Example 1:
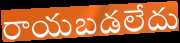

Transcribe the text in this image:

రాయబడలేదు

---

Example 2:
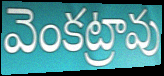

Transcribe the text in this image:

వెంకట్రావు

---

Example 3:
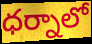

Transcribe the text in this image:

ధర్నాలో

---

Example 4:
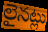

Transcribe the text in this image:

లైనట్లు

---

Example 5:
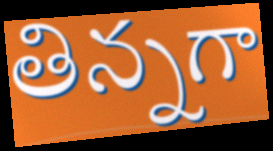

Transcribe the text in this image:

తిన్నగా